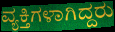
ವ್ಯಕ್ತಿಗಳಾಗಿದ್ದರು